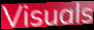
Visuals